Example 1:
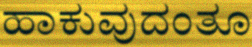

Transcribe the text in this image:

ಹಾಕುವುದಂತೂ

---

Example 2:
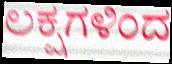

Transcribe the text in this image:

ಲಕ್ಷಗಳಿಂದ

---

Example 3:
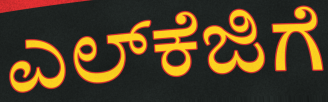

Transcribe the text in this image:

ಎಲ್‌ಕೆಜಿಗೆ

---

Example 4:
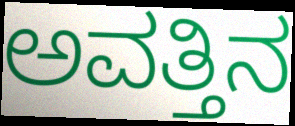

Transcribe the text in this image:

ಅವತ್ತಿನ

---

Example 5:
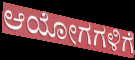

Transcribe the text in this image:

ಆಯೋಗಗಳಿಗೆ